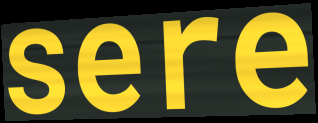
sere